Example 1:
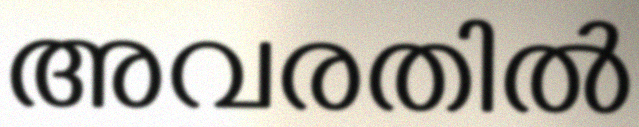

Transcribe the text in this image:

അവരതിൽ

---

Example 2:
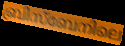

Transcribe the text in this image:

ബ്രിസ്ബേനിലെ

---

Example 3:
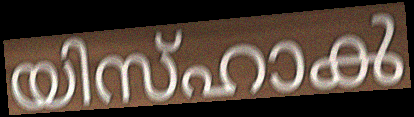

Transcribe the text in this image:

യിസ്ഹാൿ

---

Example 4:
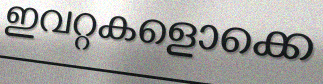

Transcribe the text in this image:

ഇവറ്റകളൊക്കെ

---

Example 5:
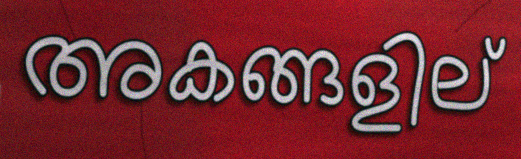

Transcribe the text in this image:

അകങ്ങളില്